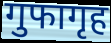
गुफागृह